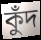
কুঁদ